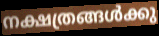
നക്ഷത്രങ്ങൾക്കു